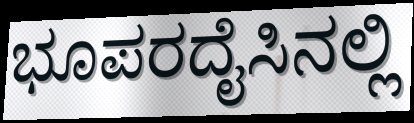
ಭೂಪರದೈಸಿನಲ್ಲಿ